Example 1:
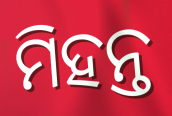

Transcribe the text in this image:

ମିହନ୍ତ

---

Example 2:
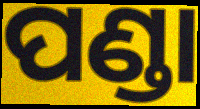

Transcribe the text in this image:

ପଣ୍ଡା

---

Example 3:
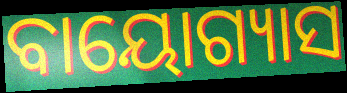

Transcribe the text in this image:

ବାୟୋଗ୍ୟାସ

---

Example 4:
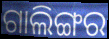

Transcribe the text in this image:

ଗାଲିଙ୍ଗର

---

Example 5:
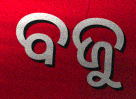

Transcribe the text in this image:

ବଜୁ